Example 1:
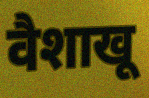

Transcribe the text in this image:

वैशाखू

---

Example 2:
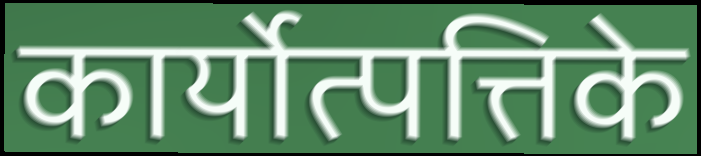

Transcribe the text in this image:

कार्योत्पत्तिके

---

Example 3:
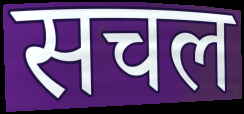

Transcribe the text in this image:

सचल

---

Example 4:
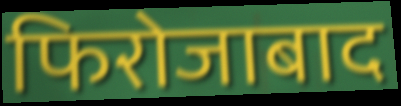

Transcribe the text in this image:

फिरोजाबाद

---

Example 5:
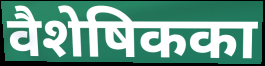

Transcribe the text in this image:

वैशेषिकका